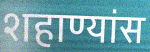
शहाण्यांस